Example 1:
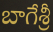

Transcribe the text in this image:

బాగేశ్రీ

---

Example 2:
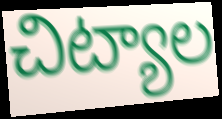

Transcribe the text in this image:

చిట్యాల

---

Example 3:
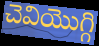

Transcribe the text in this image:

చెవియొగ్గి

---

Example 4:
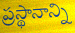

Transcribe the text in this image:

ప్రస్థానాన్ని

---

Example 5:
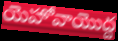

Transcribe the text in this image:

యెహోవాయొద్ద